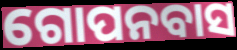
ଗୋପନବାସ